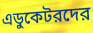
এডুকেটরদের